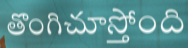
తొంగిచూస్తోంది